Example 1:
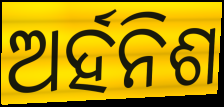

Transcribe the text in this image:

ଅର୍ହନିଶ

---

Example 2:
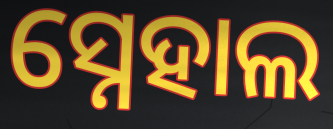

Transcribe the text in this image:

ସ୍ନେହାଲ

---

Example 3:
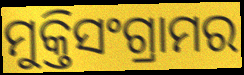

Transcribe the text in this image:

ମୁକ୍ତିସଂଗ୍ରାମର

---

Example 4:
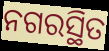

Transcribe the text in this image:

ନଗରସ୍ଥିତ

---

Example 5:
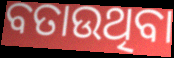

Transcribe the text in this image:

ବତାଉଥିବା